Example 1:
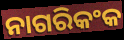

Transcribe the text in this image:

ନାଗରିକଂକ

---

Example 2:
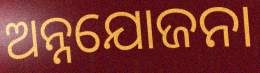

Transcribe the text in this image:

ଅନ୍ନଯୋଜନା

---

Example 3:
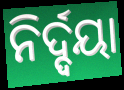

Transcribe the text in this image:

ନିର୍ଦ୍ଦୟା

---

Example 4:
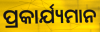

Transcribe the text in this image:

ପ୍ରକାର୍ଯ୍ୟମାନ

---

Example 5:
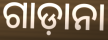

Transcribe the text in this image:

ଗାଡ଼ାନା